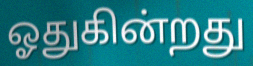
ஓதுகின்றது